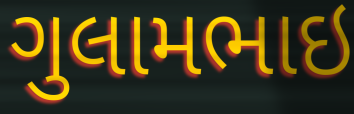
ગુલામભાઇ